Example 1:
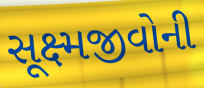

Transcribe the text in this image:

સૂક્ષ્મજીવોની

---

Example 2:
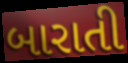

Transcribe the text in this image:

બારાતી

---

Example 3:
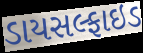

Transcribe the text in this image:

ડાયસલ્ફાઇડ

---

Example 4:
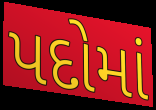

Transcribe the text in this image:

પદોમાં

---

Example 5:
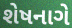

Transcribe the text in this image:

શેષનાગે